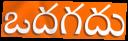
ఒదగదు